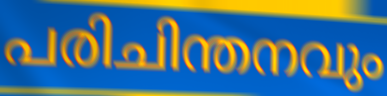
പരിചിന്തനവും